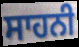
ਸਾਹਨੀ